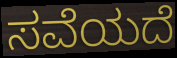
ಸವೆಯದೆ